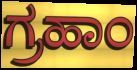
ಗ್ರಹಾಂ